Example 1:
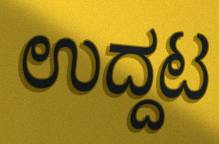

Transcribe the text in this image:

ಉದ್ದಟ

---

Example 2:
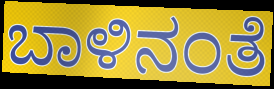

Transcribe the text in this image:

ಬಾಳಿನಂತೆ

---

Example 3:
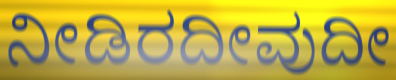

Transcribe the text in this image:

ನೀಡಿರದೀವುದೀ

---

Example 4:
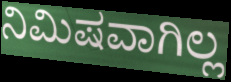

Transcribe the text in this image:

ನಿಮಿಷವಾಗಿಲ್ಲ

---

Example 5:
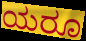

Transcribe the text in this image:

ಯರೂ